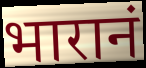
भारानं